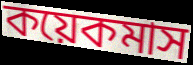
কয়েকমাস